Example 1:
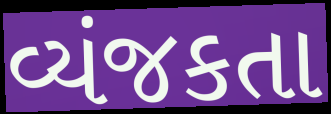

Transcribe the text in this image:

વ્યંજકતા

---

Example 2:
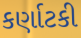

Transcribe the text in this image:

કર્ણાટકી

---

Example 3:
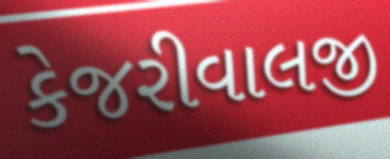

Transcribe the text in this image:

કેજરીવાલજી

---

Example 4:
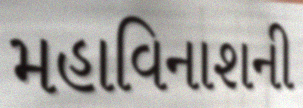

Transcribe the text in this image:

મહાવિનાશની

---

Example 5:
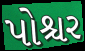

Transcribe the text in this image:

પોશ્ચર